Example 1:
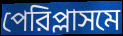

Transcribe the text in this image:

পেরিপ্লাসমে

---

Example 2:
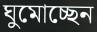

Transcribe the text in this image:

ঘুমোচ্ছেন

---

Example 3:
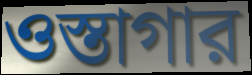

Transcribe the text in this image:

ওস্তাগার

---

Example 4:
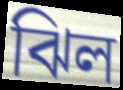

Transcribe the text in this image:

ঝিল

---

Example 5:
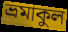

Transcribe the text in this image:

ভ্রমাকুল